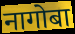
नागोबा